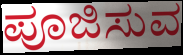
ಪೂಜಿಸುವ